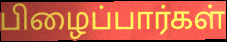
பிழைப்பார்கள்